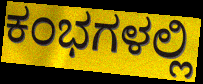
ಕಂಭಗಳಲ್ಲಿ